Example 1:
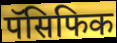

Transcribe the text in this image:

पॅसिफिक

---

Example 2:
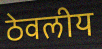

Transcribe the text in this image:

ठेवलीय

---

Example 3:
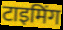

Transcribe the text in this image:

टाइमिंग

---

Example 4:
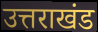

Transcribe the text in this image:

उत्तराखंड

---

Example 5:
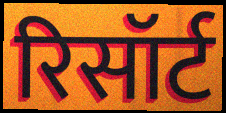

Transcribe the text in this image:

रिसॉर्ट